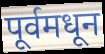
पूर्वमधून